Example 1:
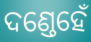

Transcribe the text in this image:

ଦଣ୍ଡେହେଁ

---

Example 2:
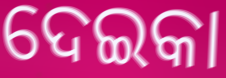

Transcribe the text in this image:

ଦେଇକା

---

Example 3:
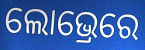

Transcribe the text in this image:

ଲୋଭ୍ରେରେ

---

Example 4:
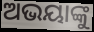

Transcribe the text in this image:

ଅଭୟାଙ୍କୁ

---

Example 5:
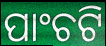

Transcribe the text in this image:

ପାଂଚଟି